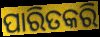
ପାରିତକରି